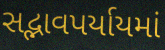
સદ્ભાવપર્યાયમાં